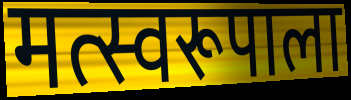
मत्स्वरूपाला